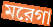
মরেগা